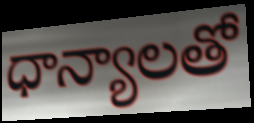
ధాన్యాలతో